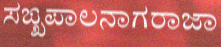
ಸಙ್ಖಪಾಲನಾಗರಾಜಾ